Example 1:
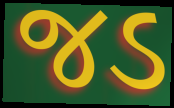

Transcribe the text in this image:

જડ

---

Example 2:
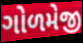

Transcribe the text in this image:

ગોળમેજી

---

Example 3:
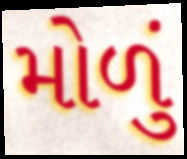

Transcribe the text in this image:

મોળું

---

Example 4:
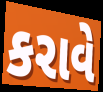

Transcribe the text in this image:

કરાવે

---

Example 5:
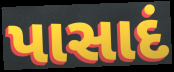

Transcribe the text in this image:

પાસાદં